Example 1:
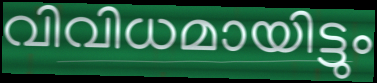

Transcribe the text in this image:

വിവിധമായിട്ടും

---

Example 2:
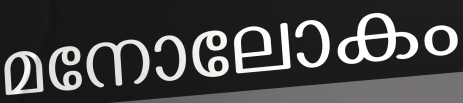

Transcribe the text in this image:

മനോലോകം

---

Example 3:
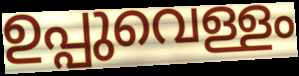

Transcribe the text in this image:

ഉപ്പുവെള്ളം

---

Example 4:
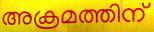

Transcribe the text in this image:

അക്രമത്തിന്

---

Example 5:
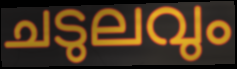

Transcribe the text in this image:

ചടുലവും